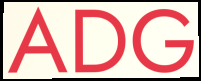
ADG